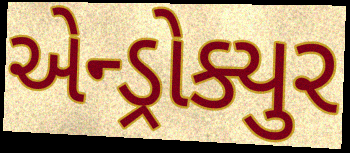
એન્ડ્રોક્યુર